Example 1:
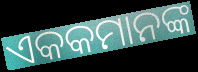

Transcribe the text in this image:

ଏକକମାନଙ୍କ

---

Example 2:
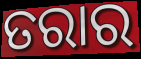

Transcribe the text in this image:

ତରାର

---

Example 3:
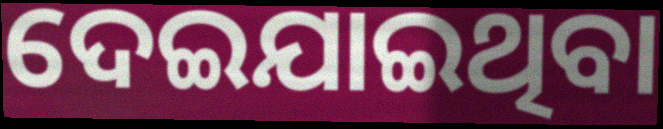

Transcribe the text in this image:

ଦେଇଯାଇଥିବା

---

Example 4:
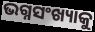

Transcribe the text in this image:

ଭଗ୍ନସଂଖ୍ୟାକୁ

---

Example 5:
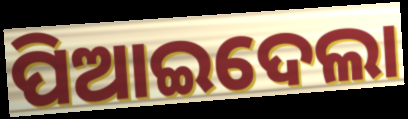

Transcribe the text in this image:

ପିଆଇଦେଲା